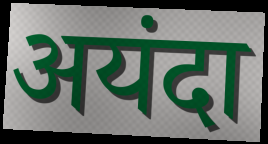
अयंदा